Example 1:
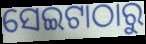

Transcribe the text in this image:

ସେଇଟାଠାରୁ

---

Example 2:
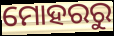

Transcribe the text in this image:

ମୋହରରୁ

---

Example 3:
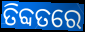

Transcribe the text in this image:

ତିବ୍ଦତରେ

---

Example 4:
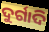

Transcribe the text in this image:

ଦୁର୍ଗାଦି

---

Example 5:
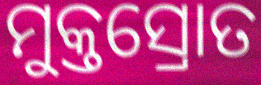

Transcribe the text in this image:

ମୁକ୍ତସ୍ରୋତ